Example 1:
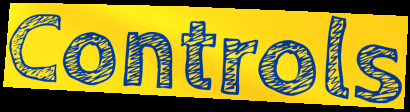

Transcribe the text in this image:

Controls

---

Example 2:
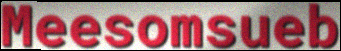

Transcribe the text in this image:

Meesomsueb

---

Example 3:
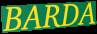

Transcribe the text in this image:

BARDA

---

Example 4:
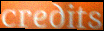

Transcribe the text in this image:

credits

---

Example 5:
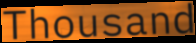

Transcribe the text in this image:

Thousand